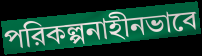
পরিকল্পনাহীনভাবে